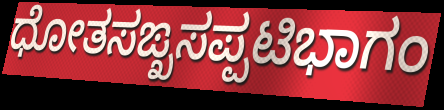
ಧೋತಸಙ್ಖಸಪ್ಪಟಿಭಾಗಂ